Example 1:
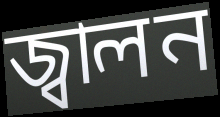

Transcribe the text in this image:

জ্বালন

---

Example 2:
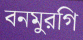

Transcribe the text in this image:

বনমুরগি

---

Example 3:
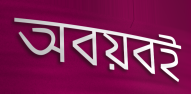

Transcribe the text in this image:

অবয়বই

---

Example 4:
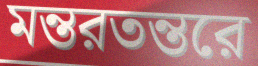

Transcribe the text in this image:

মন্তরতন্তরে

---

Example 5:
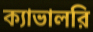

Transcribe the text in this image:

ক্যাভালরি